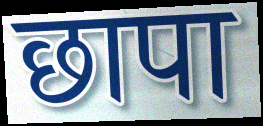
छापा